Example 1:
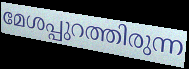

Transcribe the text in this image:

മേശപ്പുറത്തിരുന്ന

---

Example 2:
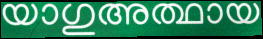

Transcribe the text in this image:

യാഗുഅത്ഥായ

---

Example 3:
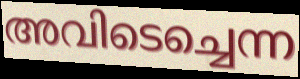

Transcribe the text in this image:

അവിടെച്ചെന്ന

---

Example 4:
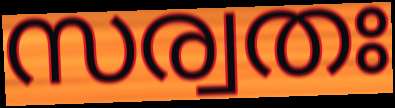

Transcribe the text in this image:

സര്വതഃ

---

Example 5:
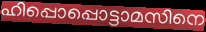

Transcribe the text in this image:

ഹിപ്പൊപ്പൊട്ടാമസിനെ